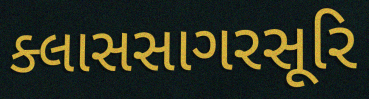
ક્લાસસાગરસૂરિ